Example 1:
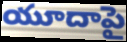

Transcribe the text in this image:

యూదాపై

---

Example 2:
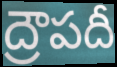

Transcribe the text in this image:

ద్రౌపదీ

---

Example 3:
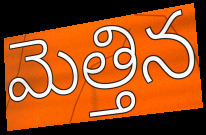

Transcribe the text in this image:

మెత్తిన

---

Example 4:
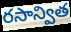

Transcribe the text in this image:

రసాన్విత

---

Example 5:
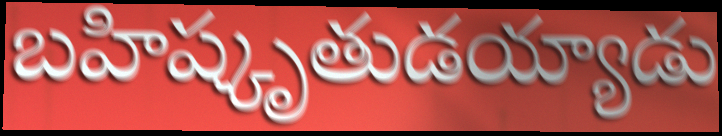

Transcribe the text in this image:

బహిష్కృతుడయ్యాడు